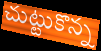
చుట్టుకొన్న